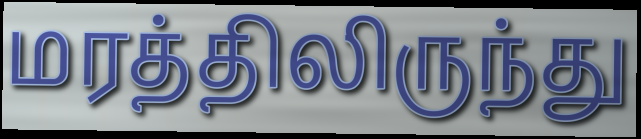
மரத்திலிருந்து